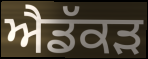
ਐਡੱਕੜ